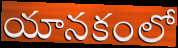
యానకంలో